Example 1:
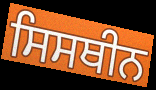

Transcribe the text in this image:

ਸਿਸਥੀਨ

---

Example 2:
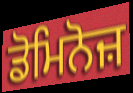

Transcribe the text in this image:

ਡੋਮਿਨੋਜ਼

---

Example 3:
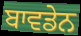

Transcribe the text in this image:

ਬਾਵਡੇਨ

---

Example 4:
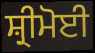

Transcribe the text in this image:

ਸ਼੍ਰੀਮੋਈ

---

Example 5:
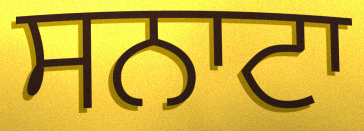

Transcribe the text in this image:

ਸਨਾਟਾ